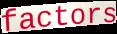
factors